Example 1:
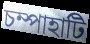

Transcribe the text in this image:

চম্পাহাটি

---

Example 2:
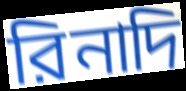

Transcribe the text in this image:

রিনাদি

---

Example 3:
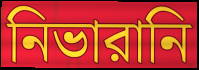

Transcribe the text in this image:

নিভারানি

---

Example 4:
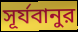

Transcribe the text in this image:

সূর্যবানুর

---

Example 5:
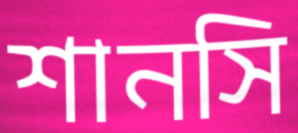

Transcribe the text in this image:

শানসি